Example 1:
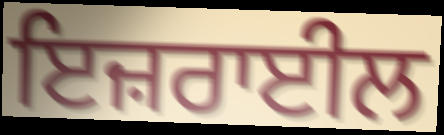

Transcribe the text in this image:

ਇਜ਼ਰਾਈਲ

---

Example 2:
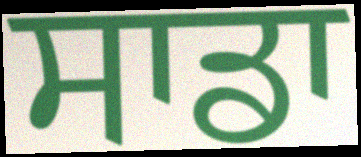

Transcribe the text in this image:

ਸਾਡਾ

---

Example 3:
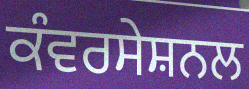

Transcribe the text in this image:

ਕੰਵਰਸੇਸ਼ਨਲ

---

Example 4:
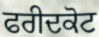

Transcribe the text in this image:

ਫਰੀਦਕੋਟ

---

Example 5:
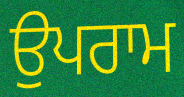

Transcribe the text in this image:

ਉਪਰਾਮ